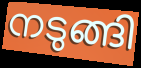
നടുങ്ങി